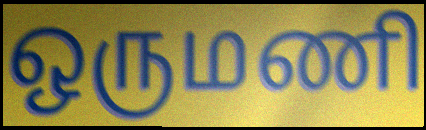
ஒருமணி